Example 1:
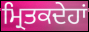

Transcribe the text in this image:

ਮ੍ਰਿਤਕਦੇਹਾਂ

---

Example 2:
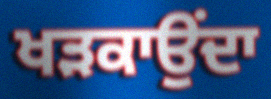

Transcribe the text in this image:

ਖੜਕਾਉਂਦਾ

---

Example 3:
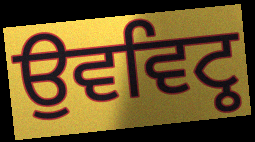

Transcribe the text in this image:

ਉਵਵਿਟ੍ਠ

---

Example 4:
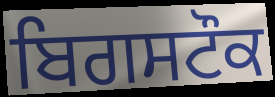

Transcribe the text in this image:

ਬਿਗਸਟੌਕ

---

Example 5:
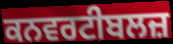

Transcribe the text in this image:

ਕਨਵਰਟੀਬਲਜ਼